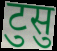
टुसु